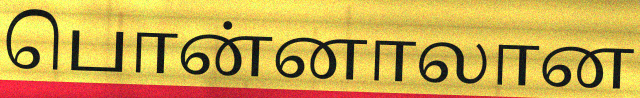
பொன்னாலான